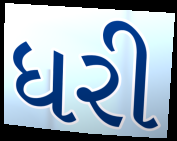
ધરી